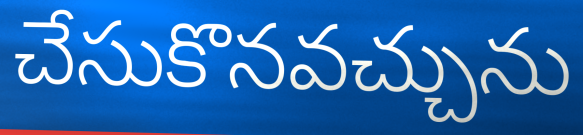
చేసుకొనవచ్చును